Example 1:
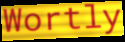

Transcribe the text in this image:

Wortly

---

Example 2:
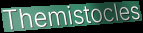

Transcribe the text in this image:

Themistocles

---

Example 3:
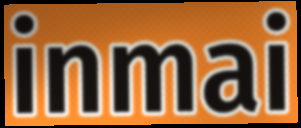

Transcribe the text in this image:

inmai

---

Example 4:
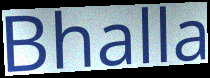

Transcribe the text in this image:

Bhalla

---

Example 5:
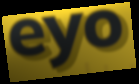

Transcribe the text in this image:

eyo